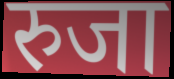
रुजा